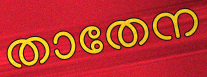
താതേന